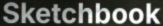
Sketchbook